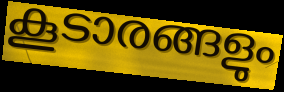
കൂടാരങ്ങളും